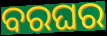
ବରଘର